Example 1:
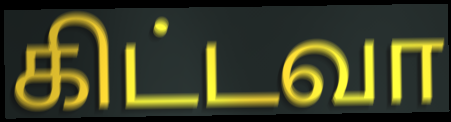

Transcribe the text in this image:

கிட்டவா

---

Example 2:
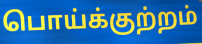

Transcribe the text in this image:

பொய்க்குற்றம்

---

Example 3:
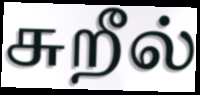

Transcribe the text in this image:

சுறீல்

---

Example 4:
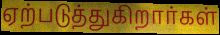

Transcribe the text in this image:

ஏற்படுத்துகிறார்கள்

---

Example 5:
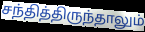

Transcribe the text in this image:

சந்தித்திருந்தாலும்